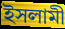
ইসলামী